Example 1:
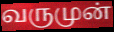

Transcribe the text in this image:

வருமுன்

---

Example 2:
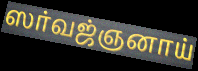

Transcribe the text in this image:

ஸர்வஜ்ஞனாய்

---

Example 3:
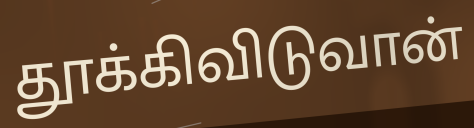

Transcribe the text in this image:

தூக்கிவிடுவான்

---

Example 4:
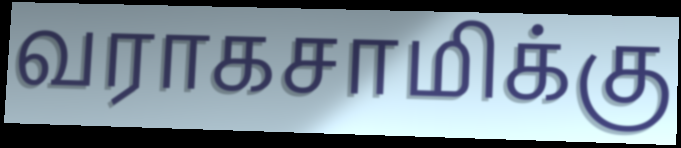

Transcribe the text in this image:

வராகசாமிக்கு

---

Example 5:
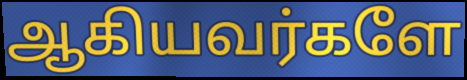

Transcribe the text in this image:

ஆகியவர்களே